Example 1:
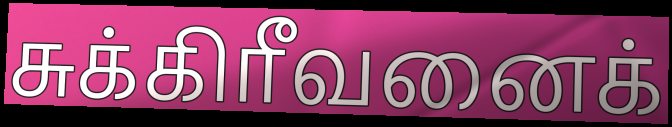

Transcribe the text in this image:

சுக்கிரீவனைக்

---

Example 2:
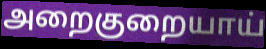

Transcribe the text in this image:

அறைகுறையாய்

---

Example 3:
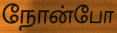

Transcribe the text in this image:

நோன்போ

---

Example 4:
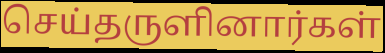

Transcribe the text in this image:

செய்தருளினார்கள்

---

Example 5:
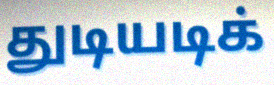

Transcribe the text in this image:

துடியடிக்